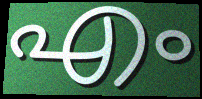
എം